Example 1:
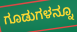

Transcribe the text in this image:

ಗೂಡುಗಳನ್ನೂ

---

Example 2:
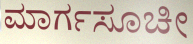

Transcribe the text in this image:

ಮಾರ್ಗಸೂಚೀ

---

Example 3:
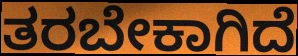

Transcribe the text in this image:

ತರಬೇಕಾಗಿದೆ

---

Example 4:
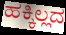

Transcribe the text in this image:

ಹಕ್ಕಿಲ್ಲದ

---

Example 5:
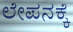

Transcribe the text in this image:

ಲೇಪನಕ್ಕೆ